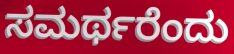
ಸಮರ್ಥರೆಂದು